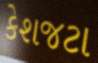
કેશજટા